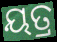
ୟତ୍ର